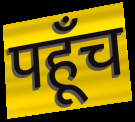
पहूँच